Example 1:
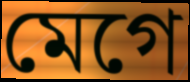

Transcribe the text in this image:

মেগে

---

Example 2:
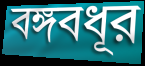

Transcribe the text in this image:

বঙ্গবধূর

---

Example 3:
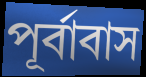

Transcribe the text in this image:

পূর্বাবাস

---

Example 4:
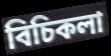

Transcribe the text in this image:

বিচিকলা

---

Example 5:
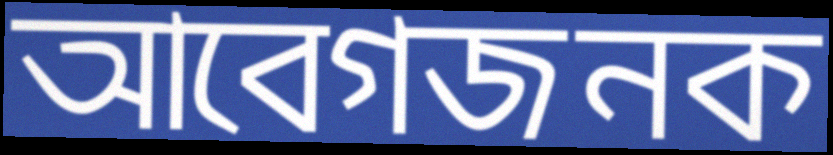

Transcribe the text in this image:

আবেগজনক